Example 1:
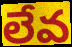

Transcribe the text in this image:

లేవ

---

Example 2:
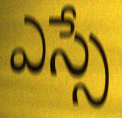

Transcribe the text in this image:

ఎస్సే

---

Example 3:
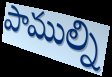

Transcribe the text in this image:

పాముల్ని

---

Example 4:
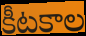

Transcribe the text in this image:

కీటకాల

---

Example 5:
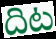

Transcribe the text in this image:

దిట